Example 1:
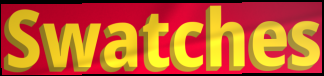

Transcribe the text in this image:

Swatches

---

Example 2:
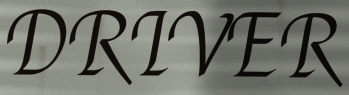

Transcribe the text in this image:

DRIVER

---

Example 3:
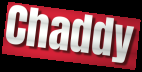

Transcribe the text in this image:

Chaddy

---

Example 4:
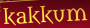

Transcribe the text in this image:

kakkum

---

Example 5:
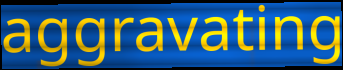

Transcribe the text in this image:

aggravating